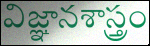
విజ్ఞానశాస్త్రం